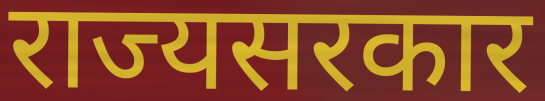
राज्यसरकार